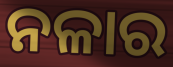
ନଳାର